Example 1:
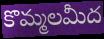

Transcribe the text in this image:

కొమ్మలమీద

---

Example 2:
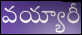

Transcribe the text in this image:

వయ్యారీ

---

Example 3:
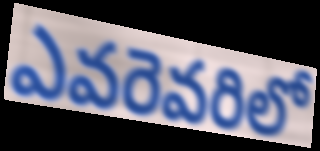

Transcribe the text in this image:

ఎవరెవరిలో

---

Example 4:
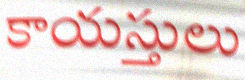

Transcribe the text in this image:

కాయస్తులు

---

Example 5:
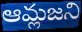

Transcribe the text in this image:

ఆమ్లజని